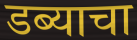
डब्याचा